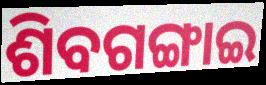
ଶିବଗଙ୍ଗାଇ